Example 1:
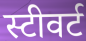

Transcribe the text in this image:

स्टीवर्ट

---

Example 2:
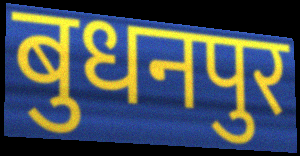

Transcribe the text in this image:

बुधनपुर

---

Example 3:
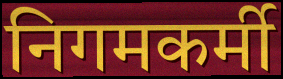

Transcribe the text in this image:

निगमकर्मी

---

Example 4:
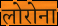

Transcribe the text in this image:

लोरोना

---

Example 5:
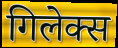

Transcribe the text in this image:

गिलेक्स